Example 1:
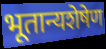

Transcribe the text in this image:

भूतान्यशेषेण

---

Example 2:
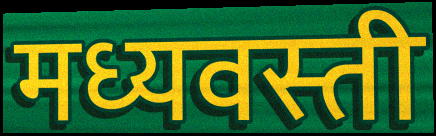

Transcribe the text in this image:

मध्यवस्ती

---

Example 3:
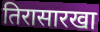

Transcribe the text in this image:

तिरासारखा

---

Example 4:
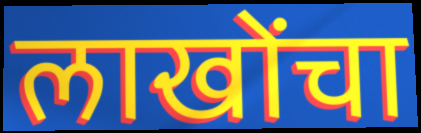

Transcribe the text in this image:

लाखोंचा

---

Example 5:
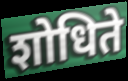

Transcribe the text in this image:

शोधिते